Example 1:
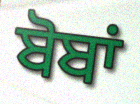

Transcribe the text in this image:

ਬੋਬਾਂ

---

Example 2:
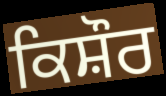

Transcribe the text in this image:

ਕਿਸ਼ੌਰ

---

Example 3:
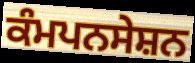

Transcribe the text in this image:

ਕੰਮਪਨਸੇਸ਼ਨ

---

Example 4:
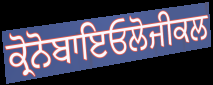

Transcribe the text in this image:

ਕ੍ਰੋਨੋਬਾਇਓਲੋਜੀਕਲ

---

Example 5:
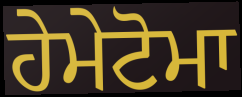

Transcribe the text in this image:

ਹੇਮੇਟੋਮਾ